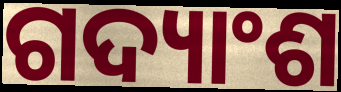
ଗଦ୍ୟାଂଶ